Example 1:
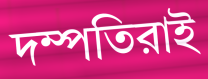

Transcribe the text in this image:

দম্পতিরাই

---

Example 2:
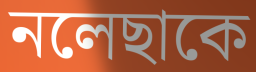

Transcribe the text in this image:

নলেছাকে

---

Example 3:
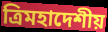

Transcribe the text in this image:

ত্রিমহাদেশীয়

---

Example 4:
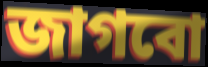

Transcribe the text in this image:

জাগবো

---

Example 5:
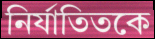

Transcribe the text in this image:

নির্যাতিতকে